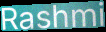
Rashmi